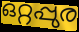
ഒറ്റപ്പുര